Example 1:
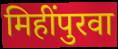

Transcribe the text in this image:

मिहींपुरवा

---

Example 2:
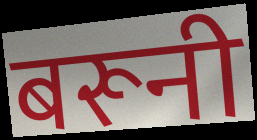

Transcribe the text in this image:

बरूनी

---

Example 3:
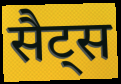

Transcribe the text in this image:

सैट्स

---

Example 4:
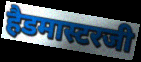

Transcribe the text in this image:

हैडमास्टरजी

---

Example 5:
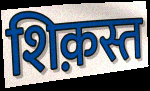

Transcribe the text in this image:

शिक़स्त